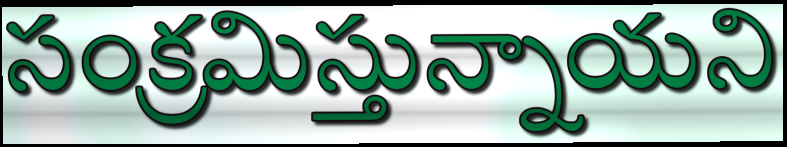
సంక్రమిస్తున్నాయని